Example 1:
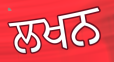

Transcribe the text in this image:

ਲਖਨ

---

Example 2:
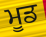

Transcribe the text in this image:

ਮੂਡ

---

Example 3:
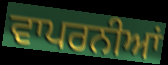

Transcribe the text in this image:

ਵਾਪਰਨੀਆਂ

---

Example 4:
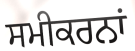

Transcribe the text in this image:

ਸਮੀਕਰਨਾਂ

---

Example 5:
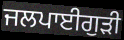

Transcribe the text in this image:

ਜਲਪਾਈਗੁਡ਼ੀ